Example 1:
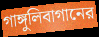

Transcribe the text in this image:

গাঙ্গুলিবাগানের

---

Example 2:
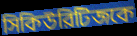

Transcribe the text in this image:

সিকিউরিটিজকে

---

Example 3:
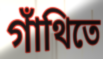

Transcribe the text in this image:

গাঁথিতে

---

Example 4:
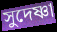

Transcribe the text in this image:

সুদেষ্ণা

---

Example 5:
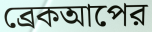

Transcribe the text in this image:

ব্রেকআপের